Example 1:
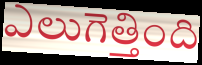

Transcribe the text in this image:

ఎలుగెత్తింది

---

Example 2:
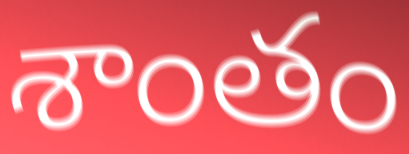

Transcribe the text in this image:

శాంతం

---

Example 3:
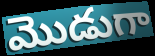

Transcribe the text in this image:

మొడుగా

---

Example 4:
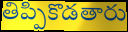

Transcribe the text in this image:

తిప్పికొడతారు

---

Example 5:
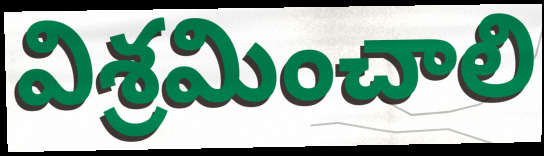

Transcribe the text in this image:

విశ్రమించాలి